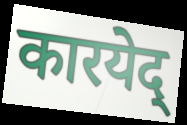
कारयेद्